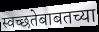
स्वच्छतेबाबतच्या